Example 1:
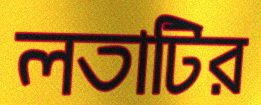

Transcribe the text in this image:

লতাটির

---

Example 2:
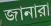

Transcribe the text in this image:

জানারা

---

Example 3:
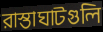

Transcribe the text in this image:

রাস্তাঘাটগুলি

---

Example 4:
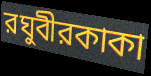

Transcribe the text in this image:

রঘুবীরকাকা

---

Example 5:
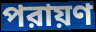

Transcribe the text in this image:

পরায়ণ